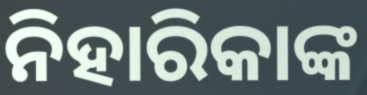
ନିହାରିକାଙ୍କ